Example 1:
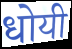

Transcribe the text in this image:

धोयी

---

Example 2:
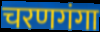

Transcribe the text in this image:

चरणगंगा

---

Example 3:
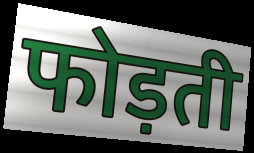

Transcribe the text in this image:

फोड़ती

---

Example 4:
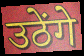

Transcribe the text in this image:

उठेंगे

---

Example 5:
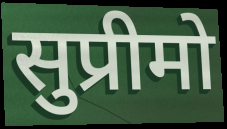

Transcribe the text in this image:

सुप्रीमो